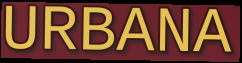
URBANA